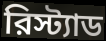
রিস্ট্যাড